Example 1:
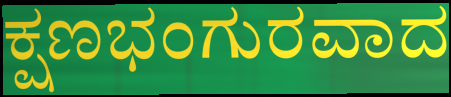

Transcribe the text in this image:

ಕ್ಷಣಭಂಗುರವಾದ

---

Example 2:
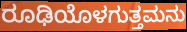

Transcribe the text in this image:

ರೂಢಿಯೊಳಗುತ್ತಮನು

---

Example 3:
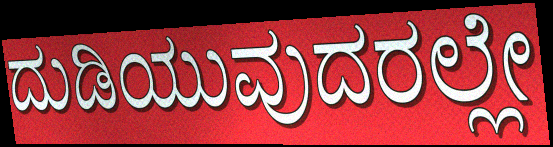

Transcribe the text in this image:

ದುಡಿಯುವುದರಲ್ಲೇ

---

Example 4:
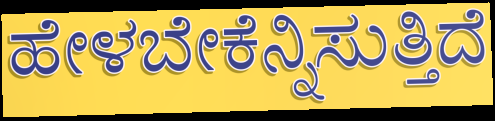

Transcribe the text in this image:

ಹೇಳಬೇಕೆನ್ನಿಸುತ್ತಿದೆ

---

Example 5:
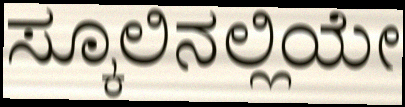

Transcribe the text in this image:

ಸ್ಕೂಲಿನಲ್ಲಿಯೇ